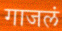
गाजलं